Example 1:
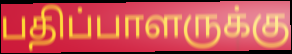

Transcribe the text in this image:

பதிப்பாளருக்கு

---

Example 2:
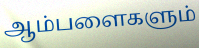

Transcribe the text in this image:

ஆம்பளைகளும்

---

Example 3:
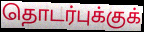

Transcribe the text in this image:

தொடர்புக்குக்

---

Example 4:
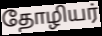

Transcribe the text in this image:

தோழியர்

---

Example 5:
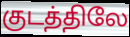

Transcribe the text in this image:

குடத்திலே